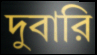
দুবারি